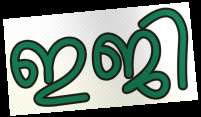
ഇജി